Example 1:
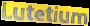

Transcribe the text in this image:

Lutetium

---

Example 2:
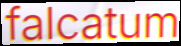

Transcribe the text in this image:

falcatum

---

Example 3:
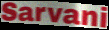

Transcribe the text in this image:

Sarvani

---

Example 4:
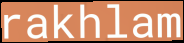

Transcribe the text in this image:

rakhlam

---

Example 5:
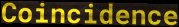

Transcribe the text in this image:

Coincidence